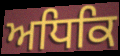
ਅਧਿਕਿ